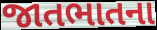
જાતભાતના